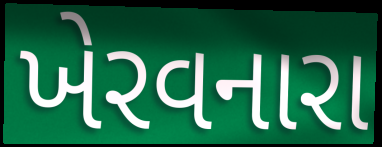
ખેરવનારા